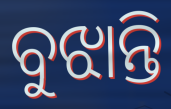
ବୁଝାନ୍ତି